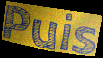
Puis